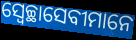
ସ୍ୱେଚ୍ଛାସେବୀମାନେ